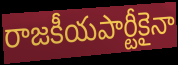
రాజకీయపార్టీకైనా